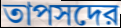
তাপসদের